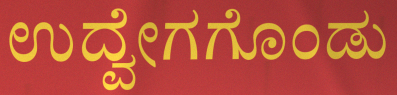
ಉದ್ವೇಗಗೊಂಡು